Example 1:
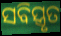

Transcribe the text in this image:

ସବିସ୍ତ୍ରୃତ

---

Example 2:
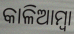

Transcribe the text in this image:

କାଳିଆମ୍ବା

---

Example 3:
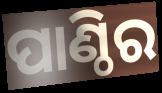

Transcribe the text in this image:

ପାଣ୍ଠିର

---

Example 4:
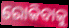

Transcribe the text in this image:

ରୋକିବାକୁ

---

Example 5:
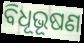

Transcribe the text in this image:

ବିଧୂଭୂଷଣ